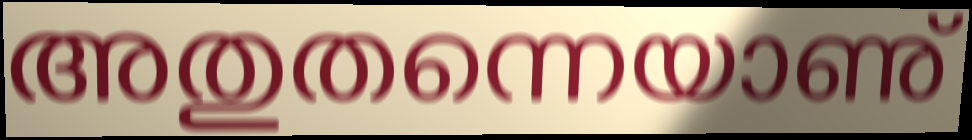
അതുതന്നെയാണു്